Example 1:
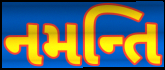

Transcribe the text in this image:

નમન્તિ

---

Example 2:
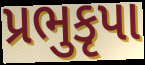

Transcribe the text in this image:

પ્રભુકૃપા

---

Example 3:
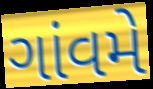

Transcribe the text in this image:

ગાંવમે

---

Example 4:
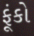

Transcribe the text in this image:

ફૂંકો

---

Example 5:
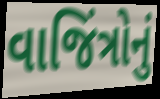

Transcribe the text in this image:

વાજિંત્રોનું